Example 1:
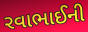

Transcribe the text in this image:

રવાભાઈની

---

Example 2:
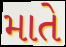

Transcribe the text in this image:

માતે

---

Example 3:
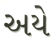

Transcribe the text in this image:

અયે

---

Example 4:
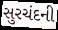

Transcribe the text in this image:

સુરચંદની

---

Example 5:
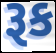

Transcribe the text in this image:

રૂક